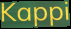
Kappi